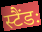
स्टैंडः